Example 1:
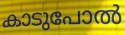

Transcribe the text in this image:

കാടുപോൽ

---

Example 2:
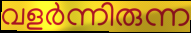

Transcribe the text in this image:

വളർന്നിരുന്ന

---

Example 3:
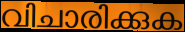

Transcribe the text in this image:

വിചാരിക്കുക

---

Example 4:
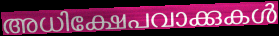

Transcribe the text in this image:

അധിക്ഷേപവാക്കുകൾ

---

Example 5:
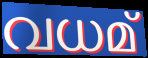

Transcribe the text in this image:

വധമ്